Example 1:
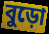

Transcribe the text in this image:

বুড়ো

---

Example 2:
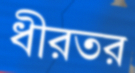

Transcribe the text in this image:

ধীরতর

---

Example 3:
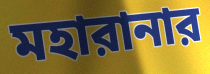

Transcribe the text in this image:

মহারানার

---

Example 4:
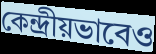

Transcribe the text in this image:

কেন্দ্রীয়ভাবেও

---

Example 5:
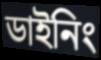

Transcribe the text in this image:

ডাইনিং